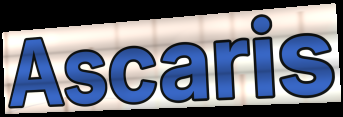
Ascaris